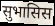
सुभासिस